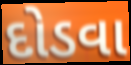
દોડવા